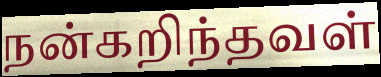
நன்கறிந்தவள்